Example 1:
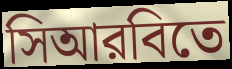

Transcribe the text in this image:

সিআরবিতে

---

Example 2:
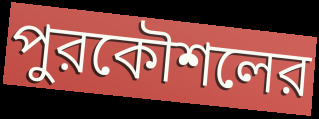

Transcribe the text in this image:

পুরকৌশলের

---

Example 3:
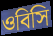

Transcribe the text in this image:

ওবিসি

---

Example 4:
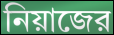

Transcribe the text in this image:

নিয়াজের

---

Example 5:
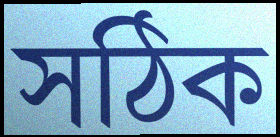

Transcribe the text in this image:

সঠিক